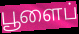
பூளைப்